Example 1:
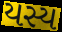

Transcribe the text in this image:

યસ્ય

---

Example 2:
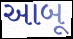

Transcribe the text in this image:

આબૂ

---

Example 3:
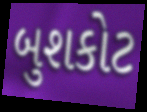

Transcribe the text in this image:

બુશકોટ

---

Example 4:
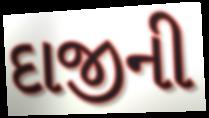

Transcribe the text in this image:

દાજીની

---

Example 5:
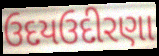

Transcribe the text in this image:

ઉદયઉદીરણા